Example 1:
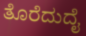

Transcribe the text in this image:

ತೊರೆದುದೈ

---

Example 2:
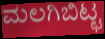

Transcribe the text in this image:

ಮಲಗಿಬಿಟ್ಟ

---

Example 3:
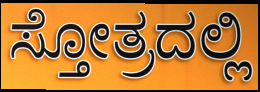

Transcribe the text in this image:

ಸ್ತೋತ್ರದಲ್ಲಿ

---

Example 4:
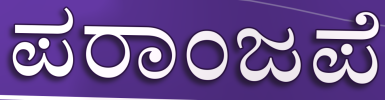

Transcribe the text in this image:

ಪರಾಂಜಪೆ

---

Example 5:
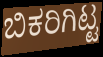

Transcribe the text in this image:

ಬಿಕರಿಗಿಟ್ಟ